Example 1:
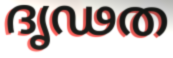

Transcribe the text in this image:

ദൃഢത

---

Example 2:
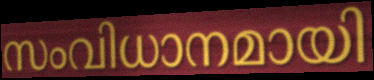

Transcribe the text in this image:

സംവിധാനമായി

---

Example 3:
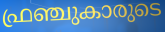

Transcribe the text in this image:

ഫ്രഞ്ചുകാരുടെ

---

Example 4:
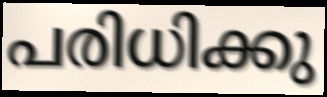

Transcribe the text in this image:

പരിധിക്കു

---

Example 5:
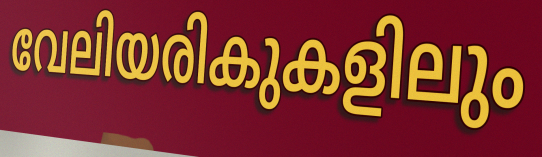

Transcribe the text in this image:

വേലിയരികുകളിലും